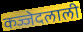
कज्जेदलाली